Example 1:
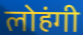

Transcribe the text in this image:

लोहंगी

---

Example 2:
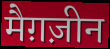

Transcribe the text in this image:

मैग़ज़ीन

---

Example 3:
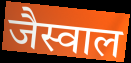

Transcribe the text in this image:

जैस्वाल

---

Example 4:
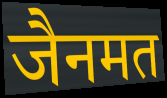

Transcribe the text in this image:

जैनमत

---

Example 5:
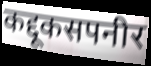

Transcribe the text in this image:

कद्दूकसपनीर